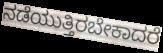
ನಡೆಯುತ್ತಿರಬೇಕಾದರೆ